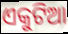
ଏକୁଟିଆ